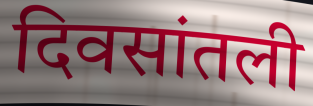
दिवसांतली